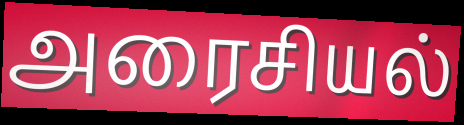
அரைசியல்